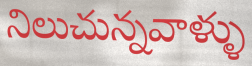
నిలుచున్నవాళ్ళు